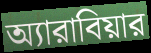
অ্যারাবিয়ার